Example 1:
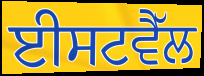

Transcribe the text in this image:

ਈਸਟਵੈੱਲ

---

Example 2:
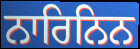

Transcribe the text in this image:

ਨਾਰਿਨਿਨ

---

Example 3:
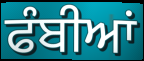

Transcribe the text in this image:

ਫੰਬੀਆਂ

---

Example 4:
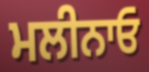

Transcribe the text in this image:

ਮਲੀਨਾਓ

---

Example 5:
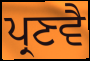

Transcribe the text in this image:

ਪ੍ਰਣਵੈ